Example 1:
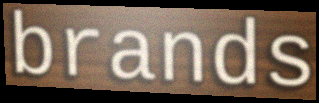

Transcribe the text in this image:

brands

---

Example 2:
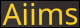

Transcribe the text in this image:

Aiims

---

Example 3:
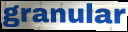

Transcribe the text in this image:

granular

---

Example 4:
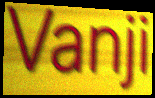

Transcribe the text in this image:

Vanji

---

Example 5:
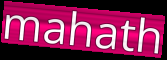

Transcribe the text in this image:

mahath